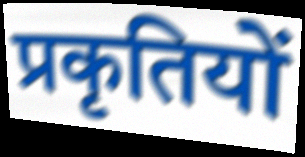
प्रकृतियों